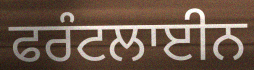
ਫਰੰਟਲਾਈਨ